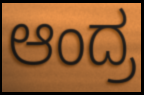
ಆಂದ್ರ